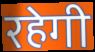
रहेगी